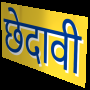
छेदावी